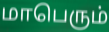
மாபெரும்